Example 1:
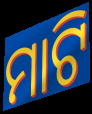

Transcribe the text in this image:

ମାଟି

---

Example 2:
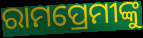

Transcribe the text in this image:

ରାମପ୍ରେମୀଙ୍କୁ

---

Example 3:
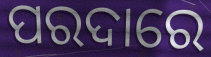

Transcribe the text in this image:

ପରଦାରେ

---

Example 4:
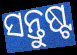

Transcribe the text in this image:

ସନ୍ତୁଷ୍ଟ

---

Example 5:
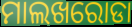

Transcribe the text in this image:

ମାଲଖରୋଡା